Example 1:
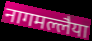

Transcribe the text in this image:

नागमल्लैया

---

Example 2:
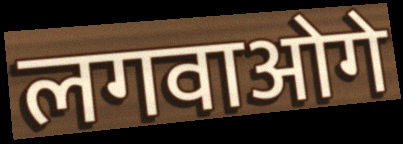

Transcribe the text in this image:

लगवाओगे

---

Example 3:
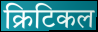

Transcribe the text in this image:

क्रिटिकल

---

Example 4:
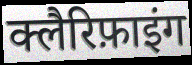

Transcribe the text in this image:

क्लैरिफ़ाइंग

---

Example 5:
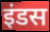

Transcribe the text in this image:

इंडस